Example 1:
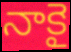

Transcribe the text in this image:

నాకై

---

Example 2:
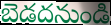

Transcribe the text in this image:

బెడదనుండి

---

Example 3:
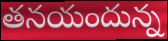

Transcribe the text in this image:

తనయందున్న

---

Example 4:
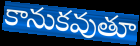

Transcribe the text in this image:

కానుకవుతూ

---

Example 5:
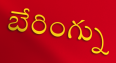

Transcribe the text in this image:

బేరింగ్ను